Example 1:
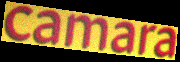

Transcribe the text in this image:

camara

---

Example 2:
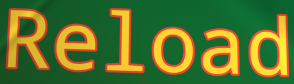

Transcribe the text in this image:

Reload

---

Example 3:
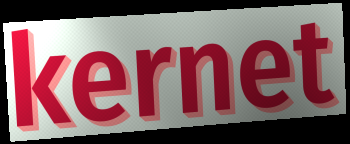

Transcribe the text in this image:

kernet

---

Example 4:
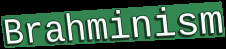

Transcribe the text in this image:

Brahminism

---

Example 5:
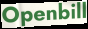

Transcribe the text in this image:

Openbill